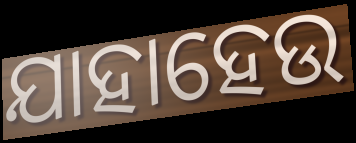
ଯାହାହେଉ